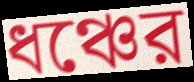
ধঞ্চের